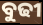
ବୁଢୀ